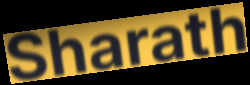
Sharath